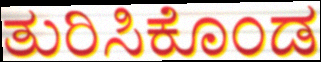
ತುರಿಸಿಕೊಂಡ